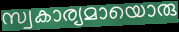
സ്വകാര്യമായൊരു